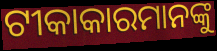
ଟୀକାକାରମାନଙ୍କୁ